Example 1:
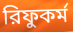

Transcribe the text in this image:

রিফুকর্ম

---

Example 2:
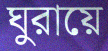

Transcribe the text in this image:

ঘুরায়ে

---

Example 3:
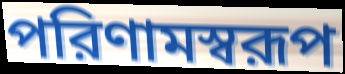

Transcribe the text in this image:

পরিণামস্বরূপ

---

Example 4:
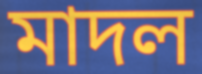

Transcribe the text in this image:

মাদল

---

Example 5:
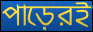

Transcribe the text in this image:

পাড়েরই